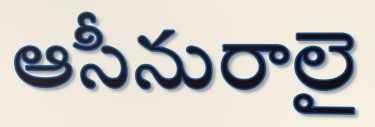
ఆసీనురాలై